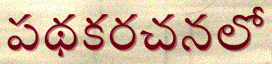
పథకరచనలో